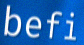
befi